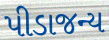
પીડાજન્ય